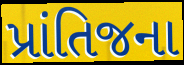
પ્રાંતિજના